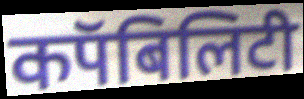
कपॅबिलिटी